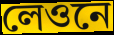
লেওনে